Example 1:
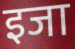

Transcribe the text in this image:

इजा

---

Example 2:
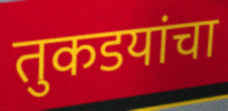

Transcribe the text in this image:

तुकडयांचा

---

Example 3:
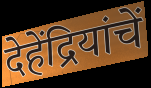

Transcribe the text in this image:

देहेंद्रियांचें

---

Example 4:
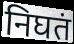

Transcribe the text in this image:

निघतं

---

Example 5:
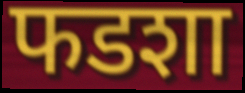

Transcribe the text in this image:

फडशा